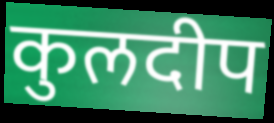
कुलदीप